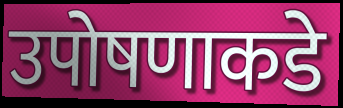
उपोषणाकडे